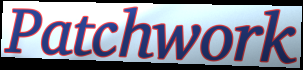
Patchwork